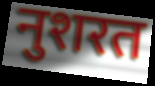
नुशरत